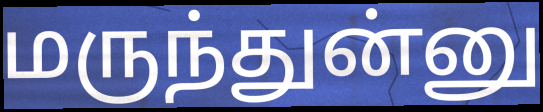
மருந்துன்னு